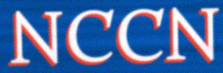
NCCN